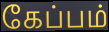
கேப்பம்